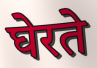
घेरते